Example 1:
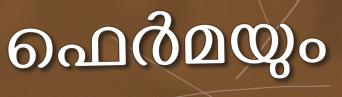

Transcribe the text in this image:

ഫെർമയും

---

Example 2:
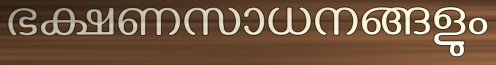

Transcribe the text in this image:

ഭക്ഷണസാധനങ്ങളും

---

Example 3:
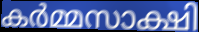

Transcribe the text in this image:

കർമ്മസാക്ഷി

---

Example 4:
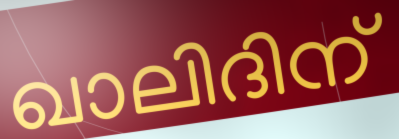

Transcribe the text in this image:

ഖാലിദിന്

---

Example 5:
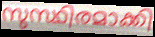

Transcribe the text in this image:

സുസ്ഥിരമാക്കി